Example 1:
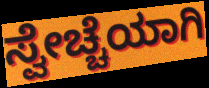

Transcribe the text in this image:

ಸ್ವೇಚ್ಚೆಯಾಗಿ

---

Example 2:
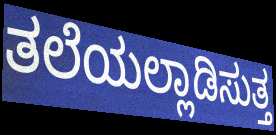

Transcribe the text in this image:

ತಲೆಯಲ್ಲಾಡಿಸುತ್ತ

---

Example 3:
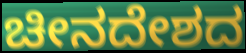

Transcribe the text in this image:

ಚೀನದೇಶದ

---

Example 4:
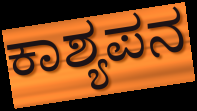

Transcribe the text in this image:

ಕಾಶ್ಯಪನ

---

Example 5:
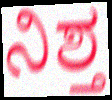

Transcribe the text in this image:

ನಿಶ್ತ